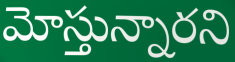
మోస్తున్నారని